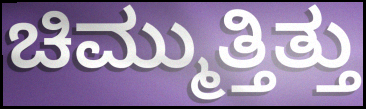
ಚಿಮ್ಮುತ್ತಿತ್ತು